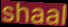
shaal